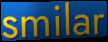
smilar